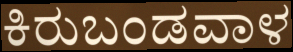
ಕಿರುಬಂಡವಾಳ